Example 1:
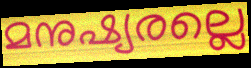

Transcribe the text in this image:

മനുഷ്യരല്ലെ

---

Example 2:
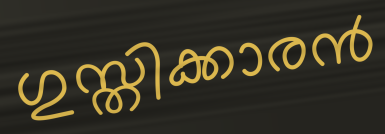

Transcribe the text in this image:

ഗുസ്തിക്കാരൻ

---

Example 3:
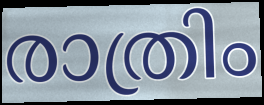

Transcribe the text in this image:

രാത്രിം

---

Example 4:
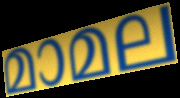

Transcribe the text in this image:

മാമല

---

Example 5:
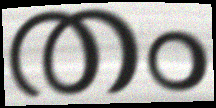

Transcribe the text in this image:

തം